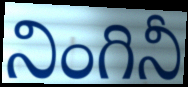
నింగినీ